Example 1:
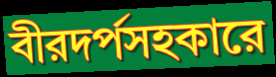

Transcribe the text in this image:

বীরদর্পসহকারে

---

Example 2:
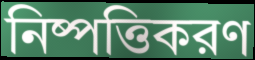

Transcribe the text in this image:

নিষ্পত্তিকরণ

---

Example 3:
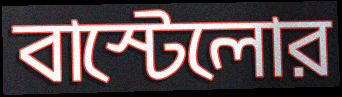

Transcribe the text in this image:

বাস্টেলোর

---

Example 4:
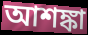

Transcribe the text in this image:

আশঙ্কা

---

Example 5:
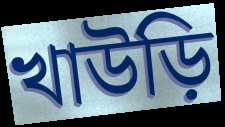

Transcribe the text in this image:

খাউড়ি